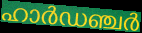
ഹാർഡഞ്ചർ